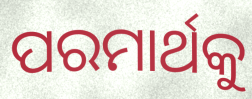
ପରମାର୍ଥକୁ